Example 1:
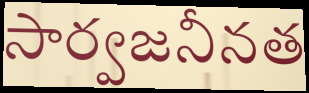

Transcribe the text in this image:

సార్వజనీనత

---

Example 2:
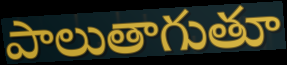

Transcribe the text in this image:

పాలుతాగుతూ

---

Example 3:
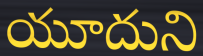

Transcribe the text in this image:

యూదుని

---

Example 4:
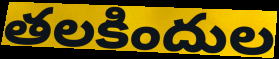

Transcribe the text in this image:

తలకిందుల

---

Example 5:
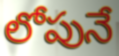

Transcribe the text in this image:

లోపునే